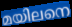
മയിലനെ